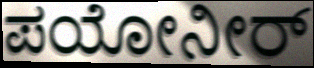
ಪಯೋನೀರ್